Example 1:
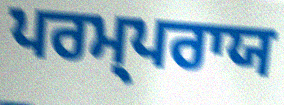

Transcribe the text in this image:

ਪਰਮ੍ਪਰਾਯ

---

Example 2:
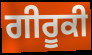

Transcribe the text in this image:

ਗੀਰੂਕੀ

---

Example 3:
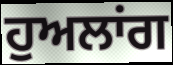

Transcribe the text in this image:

ਹੁਅਲਾਂਗ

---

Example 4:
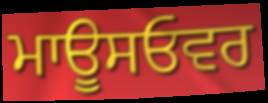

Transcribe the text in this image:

ਮਾਊਸਓਵਰ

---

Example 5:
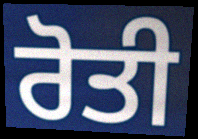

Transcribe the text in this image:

ਰੋਤੀ